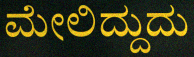
ಮೇಲಿದ್ದುದು